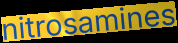
nitrosamines